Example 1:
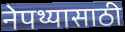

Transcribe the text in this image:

नेपथ्यासाठी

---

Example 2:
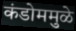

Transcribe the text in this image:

कंडोममुळे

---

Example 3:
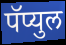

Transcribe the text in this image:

पॅप्युल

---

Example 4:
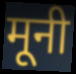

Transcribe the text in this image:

मूनी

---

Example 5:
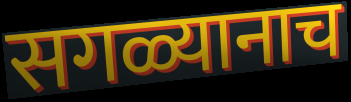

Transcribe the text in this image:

सगळ्यानाच